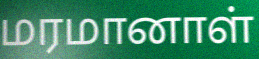
மரமானாள்